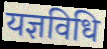
यज्ञविधि